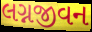
લગ્નજીવન